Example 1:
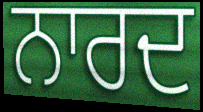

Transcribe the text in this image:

ਨਾਰਦ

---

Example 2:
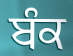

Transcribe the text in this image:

ਬੰਕ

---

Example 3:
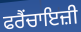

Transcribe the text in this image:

ਫਰੈਂਚਾਇਜ਼ੀ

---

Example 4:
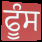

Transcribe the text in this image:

ਫੂੰਸ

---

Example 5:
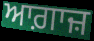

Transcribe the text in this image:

ਆਗ਼ਾਜ਼